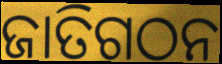
ଜାତିଗଠନ